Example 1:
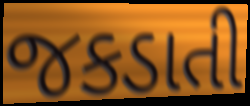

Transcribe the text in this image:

જકડાતી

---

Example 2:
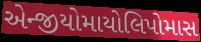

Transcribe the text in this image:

એન્જીયોમાયોલિપોમાસ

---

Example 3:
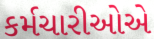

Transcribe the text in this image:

કર્મચારીઓએ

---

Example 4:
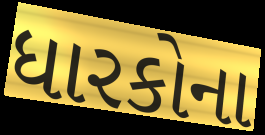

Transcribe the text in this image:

ધારકોના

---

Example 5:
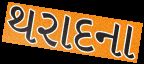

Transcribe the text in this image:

થરાદના